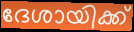
ദേശായിക്ക്